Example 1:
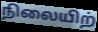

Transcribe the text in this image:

நிலையிற்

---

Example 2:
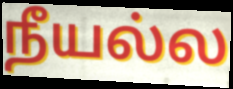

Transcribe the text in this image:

நீயல்ல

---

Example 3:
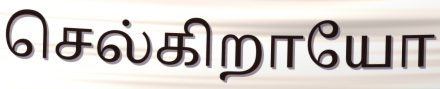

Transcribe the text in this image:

செல்கிறாயோ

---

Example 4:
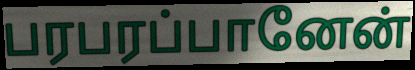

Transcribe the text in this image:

பரபரப்பானேன்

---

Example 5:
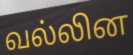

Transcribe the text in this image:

வல்லின